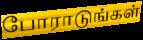
போராடுங்கள்